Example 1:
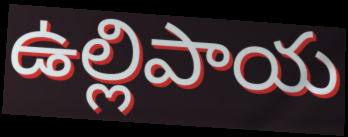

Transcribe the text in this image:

ఉల్లిపాయ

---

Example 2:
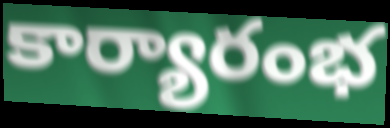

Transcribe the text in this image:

కార్యారంభ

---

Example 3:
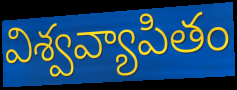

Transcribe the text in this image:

విశ్వవ్యాపితం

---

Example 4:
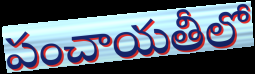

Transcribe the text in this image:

పంచాయతీలో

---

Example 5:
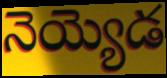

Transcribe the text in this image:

నెయ్యెడ